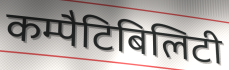
कम्पैटिबिलिटी